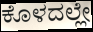
ಕೊಳದಲ್ಲೇ